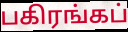
பகிரங்கப்